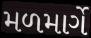
મળમાર્ગે